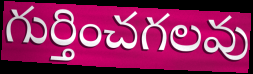
గుర్తించగలవు